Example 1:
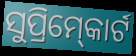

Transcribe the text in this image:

ସୁପ୍ରିମ୍‍କୋର୍ଟ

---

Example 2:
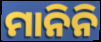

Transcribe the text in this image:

ମାନିନି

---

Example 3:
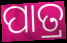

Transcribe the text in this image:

ପାତ୍ର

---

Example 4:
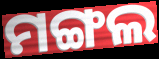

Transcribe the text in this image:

ମଙ୍ଗଲ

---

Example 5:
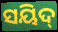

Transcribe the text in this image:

ସୟିଦ୍